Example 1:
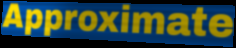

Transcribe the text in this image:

Approximate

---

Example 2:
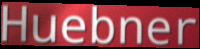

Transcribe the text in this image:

Huebner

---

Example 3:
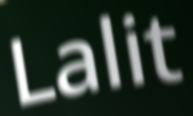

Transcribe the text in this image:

Lalit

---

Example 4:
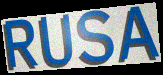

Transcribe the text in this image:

RUSA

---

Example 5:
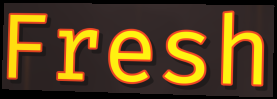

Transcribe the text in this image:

Fresh